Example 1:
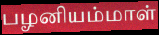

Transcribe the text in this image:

பழனியம்மாள்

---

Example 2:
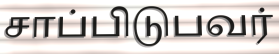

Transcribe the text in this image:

சாப்பிடுபவர்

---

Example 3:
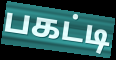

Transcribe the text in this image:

பகட்டி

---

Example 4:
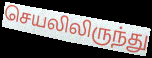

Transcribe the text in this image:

செயலிலிருந்து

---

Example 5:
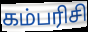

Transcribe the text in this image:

கம்பரிசி